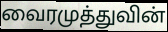
வைரமுத்துவின்